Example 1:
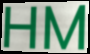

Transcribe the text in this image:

HM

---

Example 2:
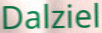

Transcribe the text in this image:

Dalziel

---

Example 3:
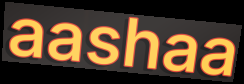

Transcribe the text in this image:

aashaa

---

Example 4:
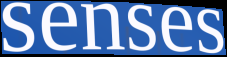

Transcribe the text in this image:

senses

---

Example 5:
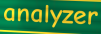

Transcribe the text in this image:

analyzer